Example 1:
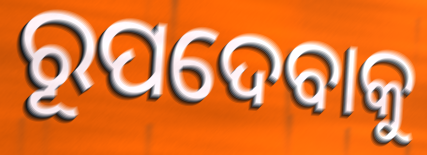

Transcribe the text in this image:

ରୂପଦେବାକୁ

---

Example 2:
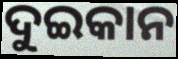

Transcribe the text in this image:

ଦୁଇକାନ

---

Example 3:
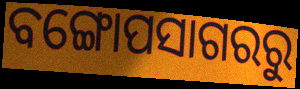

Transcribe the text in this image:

ବଙ୍ଗୋପସାଗରରୁ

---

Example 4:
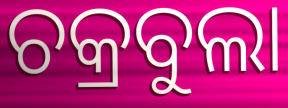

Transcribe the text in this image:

ଚକ୍ରବୁଲା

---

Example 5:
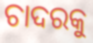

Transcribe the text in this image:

ଚାଦରକୁ